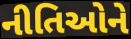
નીતિઓને